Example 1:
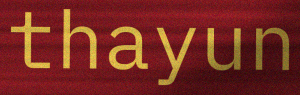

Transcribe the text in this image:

thayun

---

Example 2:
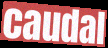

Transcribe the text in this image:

caudal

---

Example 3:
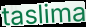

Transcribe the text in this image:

taslima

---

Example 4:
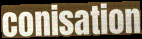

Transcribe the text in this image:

conisation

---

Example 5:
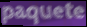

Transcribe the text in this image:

paquete